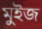
মুইজ